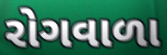
રોગવાળા